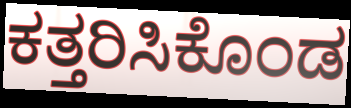
ಕತ್ತರಿಸಿಕೊಂಡ